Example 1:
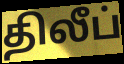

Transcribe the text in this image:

திலீப்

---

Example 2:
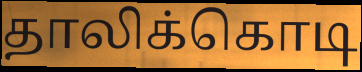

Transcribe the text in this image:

தாலிக்கொடி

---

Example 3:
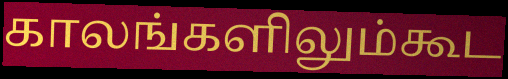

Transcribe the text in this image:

காலங்களிலும்கூட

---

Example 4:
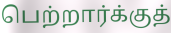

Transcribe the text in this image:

பெற்றார்க்குத்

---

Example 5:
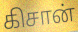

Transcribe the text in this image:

கிசான்